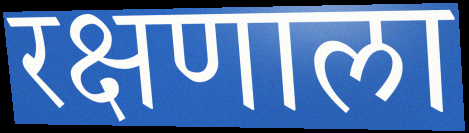
रक्षणाला